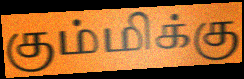
கும்மிக்கு